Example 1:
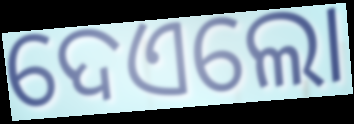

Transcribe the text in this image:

ଦେଏଲୋ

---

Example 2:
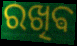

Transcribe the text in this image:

ରଖିଵ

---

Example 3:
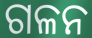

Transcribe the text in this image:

ଗଳନ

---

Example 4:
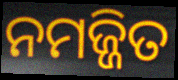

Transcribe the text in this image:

ନମଜ୍ଜିତ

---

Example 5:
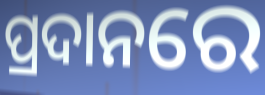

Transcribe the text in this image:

ପ୍ରଦାନରେ